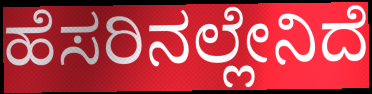
ಹೆಸರಿನಲ್ಲೇನಿದೆ